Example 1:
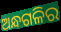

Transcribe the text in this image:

ଅନ୍ଧଗଳିର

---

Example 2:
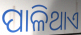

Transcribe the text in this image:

ପାଳିଥାଏ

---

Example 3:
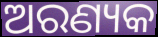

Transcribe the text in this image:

ଅରଣ୍ୟକ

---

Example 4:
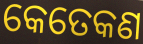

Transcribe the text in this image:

କେତେକଣ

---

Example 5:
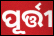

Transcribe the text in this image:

ପୂର୍ତ୍ତୀ